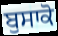
ਬੁਸਾਕੋ